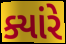
ક્યાંરે